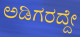
ಅಡಿಗರದ್ದೇ